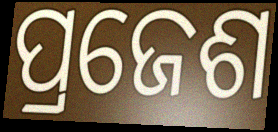
ପ୍ରଜେଶ